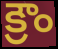
క్రౌం